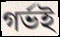
গর্ভই